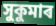
সুকুমাৰ